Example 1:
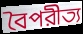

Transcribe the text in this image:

বৈপরীত্য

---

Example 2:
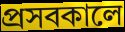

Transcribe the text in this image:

প্রসবকালে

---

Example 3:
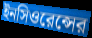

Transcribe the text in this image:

ইনসিওরেন্সের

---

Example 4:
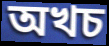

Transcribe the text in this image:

অখচ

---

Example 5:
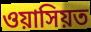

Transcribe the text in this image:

ওয়াসিয়ত